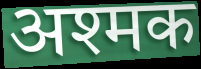
अश्मक